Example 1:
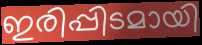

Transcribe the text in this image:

ഇരിപ്പിടമായി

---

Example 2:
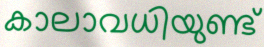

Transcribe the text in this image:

കാലാവധിയുണ്ട്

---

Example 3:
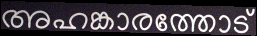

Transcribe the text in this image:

അഹങ്കാരത്തോട്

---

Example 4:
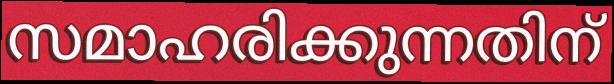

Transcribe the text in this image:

സമാഹരിക്കുന്നതിന്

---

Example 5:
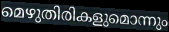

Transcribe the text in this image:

മെഴുതിരികളുമൊന്നും